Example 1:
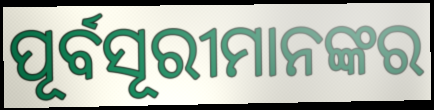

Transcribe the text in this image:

ପୂର୍ବସୂରୀମାନଙ୍କର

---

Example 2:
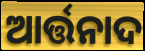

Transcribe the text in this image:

ଆର୍ତ୍ତନାଦ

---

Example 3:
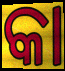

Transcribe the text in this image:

କା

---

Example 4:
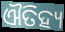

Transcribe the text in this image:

ଐତିହ୍ୟ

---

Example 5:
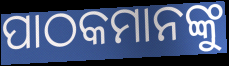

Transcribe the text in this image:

ପାଠକମାନଙ୍କୁ